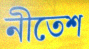
নীতেশ